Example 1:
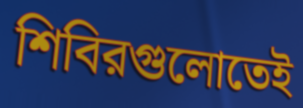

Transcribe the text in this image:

শিবিরগুলোতেই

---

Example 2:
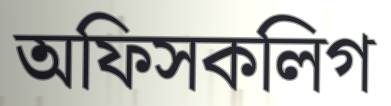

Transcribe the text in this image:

অফিসকলিগ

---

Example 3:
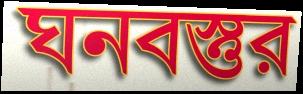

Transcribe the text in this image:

ঘনবস্তুর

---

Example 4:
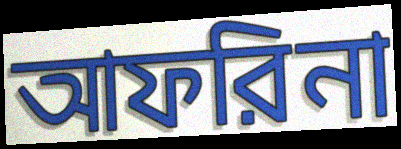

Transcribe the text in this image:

আফরিনা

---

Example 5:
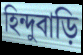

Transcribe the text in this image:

হিন্দুবাড়ি